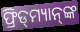
ଫ୍ରିଡ୍‌ମ୍ୟାନ୍‌ଙ୍କ